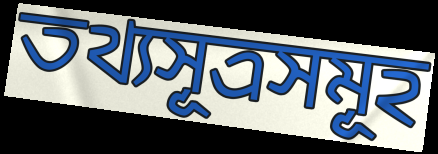
তথ্যসূত্ৰসমূহ